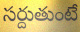
సర్దుతుంటే